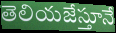
తెలియజేస్తూనే